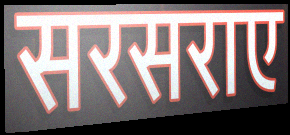
सरसराए